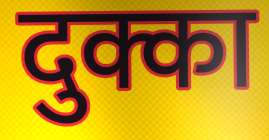
दुक्‍का